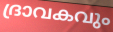
ദ്രാവകവും